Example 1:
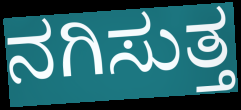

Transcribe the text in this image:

ನಗಿಸುತ್ತ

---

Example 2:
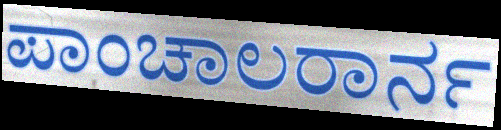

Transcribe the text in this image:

ಪಾಂಚಾಲರಾರ್ನ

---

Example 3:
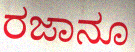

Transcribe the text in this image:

ರಜಾನೂ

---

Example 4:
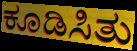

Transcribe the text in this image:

ಕೂಡಿಸಿತು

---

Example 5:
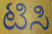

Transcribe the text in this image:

ಟಿಸಿ